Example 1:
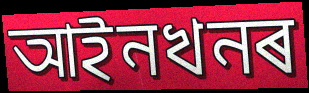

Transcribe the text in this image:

আইনখনৰ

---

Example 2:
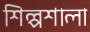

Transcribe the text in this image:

শিল্পশালা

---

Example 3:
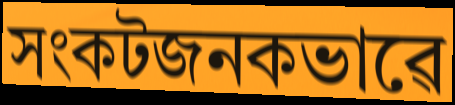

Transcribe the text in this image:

সংকটজনকভাৱে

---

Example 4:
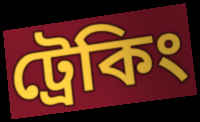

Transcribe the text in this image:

ট্ৰেকিং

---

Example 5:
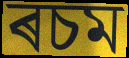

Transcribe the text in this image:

ৰচম